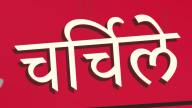
चर्चिले